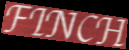
FINCH